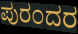
ಪುರಂದರ